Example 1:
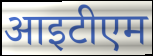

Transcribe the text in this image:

आइटीएम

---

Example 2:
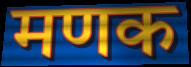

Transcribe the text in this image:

मणक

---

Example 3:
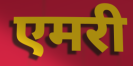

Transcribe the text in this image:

एमरी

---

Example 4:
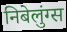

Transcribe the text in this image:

निबेलुंग्स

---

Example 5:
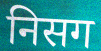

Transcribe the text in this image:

निसग